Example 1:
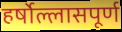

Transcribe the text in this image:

हर्षोल्लासपूर्ण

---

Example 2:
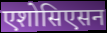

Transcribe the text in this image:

एशोसिएसन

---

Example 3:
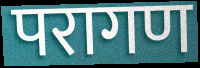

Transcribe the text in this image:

परागण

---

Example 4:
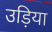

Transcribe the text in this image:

उड़िया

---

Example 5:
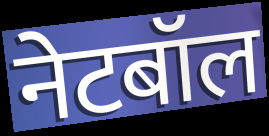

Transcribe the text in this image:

नेटबॉल